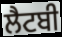
ਲੈਟਬੀ